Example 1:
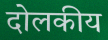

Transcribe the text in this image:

दोलकीय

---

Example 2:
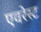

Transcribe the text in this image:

एवरेस्ट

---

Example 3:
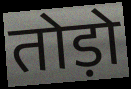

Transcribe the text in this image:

तोड़ो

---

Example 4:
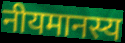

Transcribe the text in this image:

नीयमानस्य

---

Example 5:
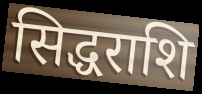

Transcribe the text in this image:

सिद्धराशि